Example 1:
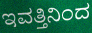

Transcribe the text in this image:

ಇವತ್ತಿನಿಂದ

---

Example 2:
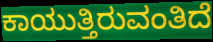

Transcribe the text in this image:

ಕಾಯುತ್ತಿರುವಂತಿದೆ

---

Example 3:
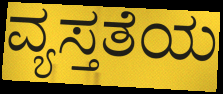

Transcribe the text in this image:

ವ್ಯಸ್ತತೆಯ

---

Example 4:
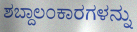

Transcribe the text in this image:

ಶಬ್ದಾಲಂಕಾರಗಳನ್ನು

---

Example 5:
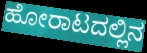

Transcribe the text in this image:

ಹೋರಾಟದಲ್ಲಿನ